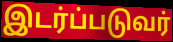
இடர்ப்படுவர்